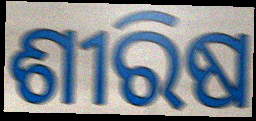
ଶୀରିଷ